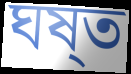
ঘষ্ত